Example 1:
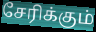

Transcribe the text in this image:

சேரிக்கும்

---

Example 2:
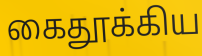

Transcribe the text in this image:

கைதூக்கிய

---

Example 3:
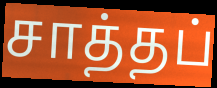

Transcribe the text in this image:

சாத்தப்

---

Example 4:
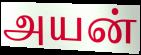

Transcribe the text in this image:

அயன்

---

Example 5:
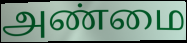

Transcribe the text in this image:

அண்மை